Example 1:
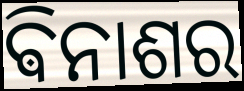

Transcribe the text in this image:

ଵିନାଶର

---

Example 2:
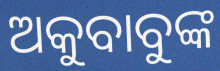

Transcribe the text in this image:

ଅକୁବାବୁଙ୍କ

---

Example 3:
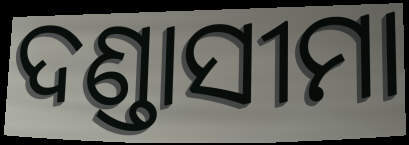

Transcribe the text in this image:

ଦଣ୍ଡାସୀମା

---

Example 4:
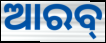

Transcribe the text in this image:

ଆରବ୍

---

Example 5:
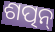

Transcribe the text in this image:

ଶତ୍ପନ୍